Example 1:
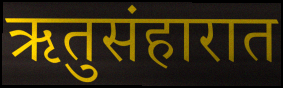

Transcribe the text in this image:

ऋतुसंहारात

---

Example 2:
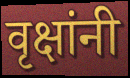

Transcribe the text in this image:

वृक्षांनी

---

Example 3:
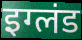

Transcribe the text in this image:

इग्लंड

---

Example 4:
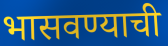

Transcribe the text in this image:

भासवण्याची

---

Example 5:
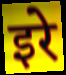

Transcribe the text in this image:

इरे